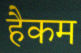
हैकम